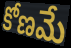
కోణమే